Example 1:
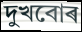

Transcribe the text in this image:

দুখবোৰ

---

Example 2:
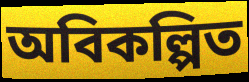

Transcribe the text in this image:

অবিকল্পিত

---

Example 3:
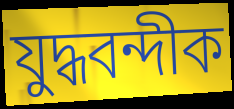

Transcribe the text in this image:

যুদ্ধবন্দীক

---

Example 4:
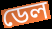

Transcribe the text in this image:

ডেল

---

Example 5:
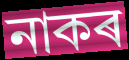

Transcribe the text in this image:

নাকৰ